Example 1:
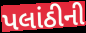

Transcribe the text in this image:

પલાંઠીની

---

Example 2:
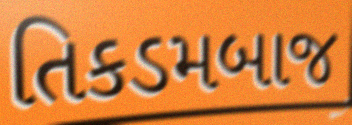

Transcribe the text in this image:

તિકડમબાજ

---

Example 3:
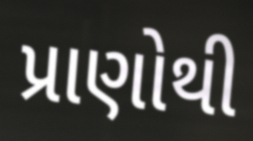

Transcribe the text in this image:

પ્રાણોથી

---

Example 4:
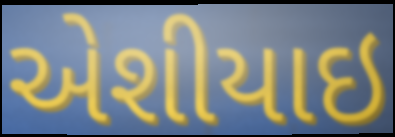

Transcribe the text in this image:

એશીયાઇ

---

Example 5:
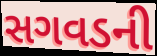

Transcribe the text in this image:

સગવડની